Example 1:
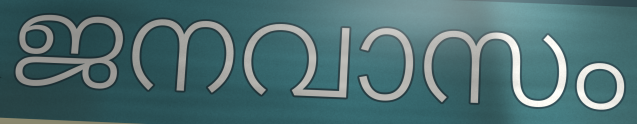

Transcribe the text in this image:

ജനവാസം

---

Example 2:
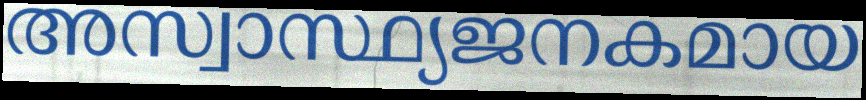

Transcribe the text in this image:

അസ്വാസ്ഥ്യജനകമായ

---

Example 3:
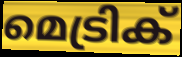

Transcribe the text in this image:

മെട്രിക്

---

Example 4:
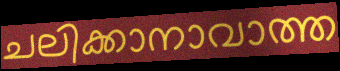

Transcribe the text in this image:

ചലിക്കാനാവാത്ത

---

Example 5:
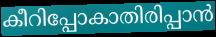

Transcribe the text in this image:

കീറിപ്പോകാതിരിപ്പാൻ